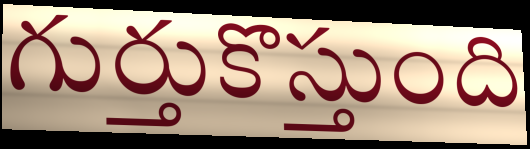
గుర్తుకొస్తుంది